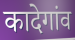
कादेगांव